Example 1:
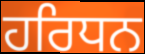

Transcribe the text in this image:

ਹਰਿਧਨ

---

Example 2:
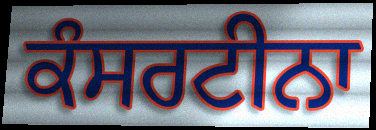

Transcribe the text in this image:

ਕੰਸਰਟੀਨਾ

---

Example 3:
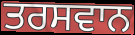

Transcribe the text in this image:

ਤਰਸਵਾਨ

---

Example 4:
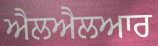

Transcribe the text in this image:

ਐਲਐਲਆਰ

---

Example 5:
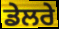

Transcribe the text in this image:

ਡੇਲਰੇ